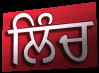
ਲਿੰਚ